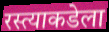
रस्त्याकडेला